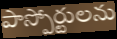
పాస్పోర్టులను